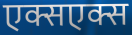
एक्सएक्स